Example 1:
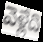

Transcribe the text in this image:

వెళ్లేది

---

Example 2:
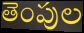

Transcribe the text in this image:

తెంపుల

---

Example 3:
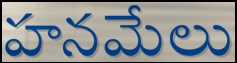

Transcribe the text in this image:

హనమేలు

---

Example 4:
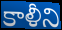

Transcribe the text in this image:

కాళీని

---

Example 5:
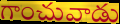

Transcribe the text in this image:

గాంచువాడు